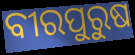
ବୀରପୁରୁଷ